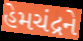
હેમચંદ્રને